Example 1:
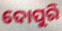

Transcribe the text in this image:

ଦୋପୁରି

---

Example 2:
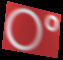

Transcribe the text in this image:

ଠଂ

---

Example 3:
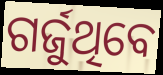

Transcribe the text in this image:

ଗର୍ଜୁଥିବେ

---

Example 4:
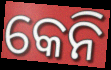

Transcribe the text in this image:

କେନି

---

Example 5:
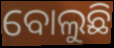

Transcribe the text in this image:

ବୋଲୁଛି